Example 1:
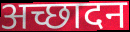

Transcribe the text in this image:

अच्छादन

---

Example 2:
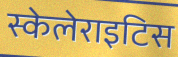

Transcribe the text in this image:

स्केलेराइटिस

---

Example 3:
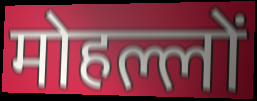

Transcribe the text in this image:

मोहल्लों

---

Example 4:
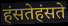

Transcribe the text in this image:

हंसतेहंसते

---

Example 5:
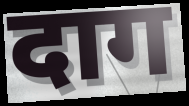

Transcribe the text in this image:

दाग